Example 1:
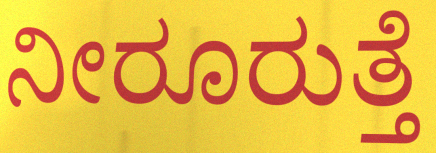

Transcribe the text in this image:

ನೀರೂರುತ್ತೆ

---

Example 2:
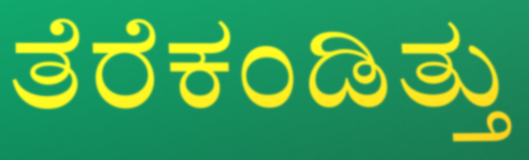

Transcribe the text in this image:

ತೆರೆಕಂಡಿತ್ತು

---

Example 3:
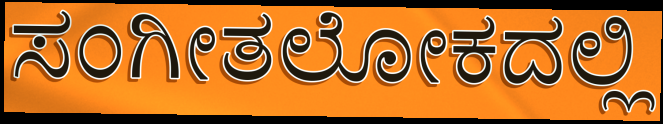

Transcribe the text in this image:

ಸಂಗೀತಲೋಕದಲ್ಲಿ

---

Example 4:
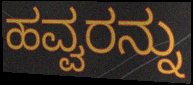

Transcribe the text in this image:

ಹವ್ವರನ್ನು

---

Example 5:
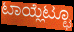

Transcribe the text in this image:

ಟಾಯ್ಲೆಟ್ಟೂ